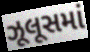
ઝૂલૂસમાં